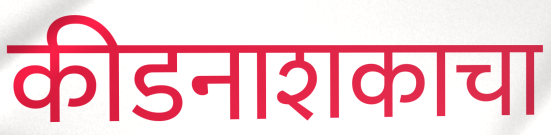
कीडनाशकाचा